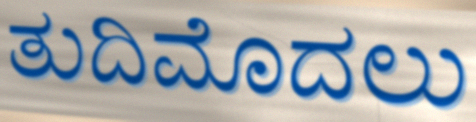
ತುದಿಮೊದಲು